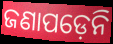
ଜଣାପଡ଼େନି